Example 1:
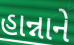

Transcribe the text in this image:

હાન્નાને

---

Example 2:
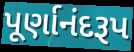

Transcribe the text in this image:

પૂર્ણાનંદરૂપ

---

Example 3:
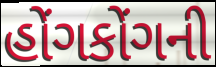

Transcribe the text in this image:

હોંગકોંગની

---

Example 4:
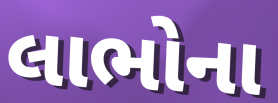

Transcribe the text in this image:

લાભોના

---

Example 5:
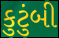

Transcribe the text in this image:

કુટુંબી